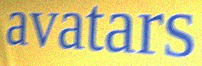
avatars